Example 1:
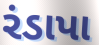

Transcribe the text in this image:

રંડાપા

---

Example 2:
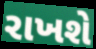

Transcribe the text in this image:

રાખશે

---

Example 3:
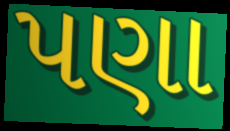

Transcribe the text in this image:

પણા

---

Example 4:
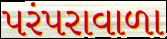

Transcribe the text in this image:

પરંપરાવાળા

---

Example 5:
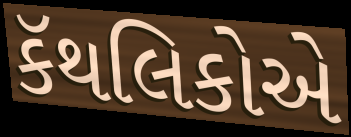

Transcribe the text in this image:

કૅથલિકોએ